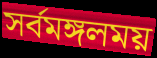
সর্বমঙ্গলময়